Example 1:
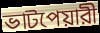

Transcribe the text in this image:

ভাটপেয়ারী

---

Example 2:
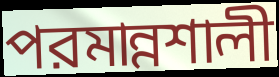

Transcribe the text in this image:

পরমান্নশালী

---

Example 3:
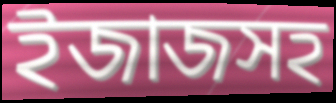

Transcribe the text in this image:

ইজাজসহ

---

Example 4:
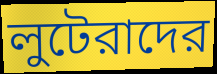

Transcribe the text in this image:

লুটেরাদের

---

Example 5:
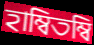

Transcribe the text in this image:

হাম্বিতম্বি